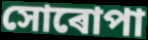
সোৰোপা